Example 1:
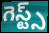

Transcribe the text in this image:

గెస్ట్స్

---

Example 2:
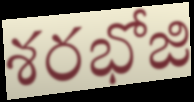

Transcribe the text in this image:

శరభోజి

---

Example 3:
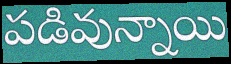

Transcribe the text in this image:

పడివున్నాయి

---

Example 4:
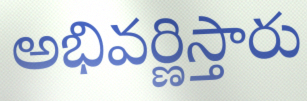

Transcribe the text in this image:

అభివర్ణిస్తారు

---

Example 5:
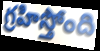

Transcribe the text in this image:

గ్రహిస్తోంది